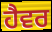
ਹੈਵਰ